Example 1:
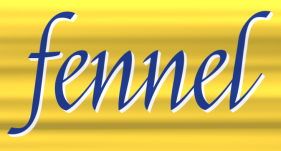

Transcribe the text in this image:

fennel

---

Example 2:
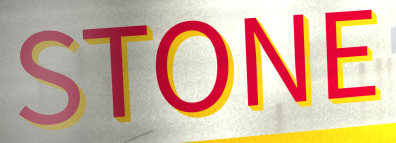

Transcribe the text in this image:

STONE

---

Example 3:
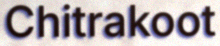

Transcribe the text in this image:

Chitrakoot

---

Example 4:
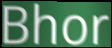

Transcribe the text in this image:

Bhor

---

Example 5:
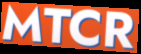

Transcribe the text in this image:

MTCR